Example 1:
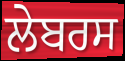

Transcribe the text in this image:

ਲੇਬਰਸ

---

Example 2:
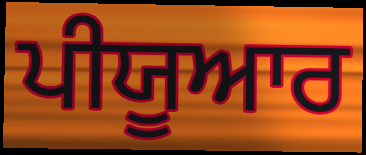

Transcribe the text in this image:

ਪੀਯੂਆਰ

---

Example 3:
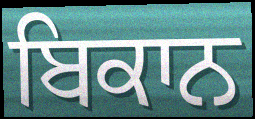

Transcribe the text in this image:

ਬਿਕਾਨ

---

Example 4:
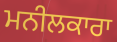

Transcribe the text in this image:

ਮਨੀਲਕਾਰਾ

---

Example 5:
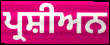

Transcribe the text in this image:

ਪ੍ਰਸ਼ੀਅਨ